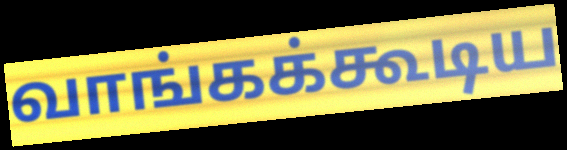
வாங்கக்கூடிய